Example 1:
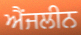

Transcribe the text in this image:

ਐਂਜਲੀਨ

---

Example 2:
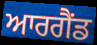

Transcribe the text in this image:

ਆਰਗੈਂਡ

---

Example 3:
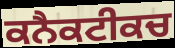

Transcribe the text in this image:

ਕਨੈਕਟੀਕਚ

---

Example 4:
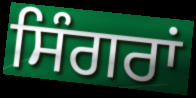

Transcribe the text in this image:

ਸਿੰਗਰਾਂ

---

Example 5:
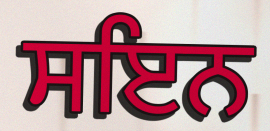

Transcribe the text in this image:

ਸਇਨ